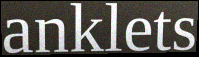
anklets